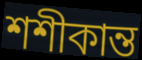
শশীকান্ত